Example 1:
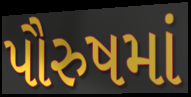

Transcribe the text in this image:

પૌરુષમાં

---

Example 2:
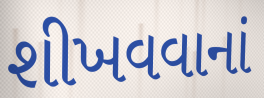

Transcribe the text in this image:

શીખવવાનાં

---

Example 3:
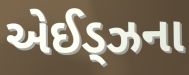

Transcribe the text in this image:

એઈડ્ઝના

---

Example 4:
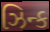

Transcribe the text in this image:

ઝિન્ક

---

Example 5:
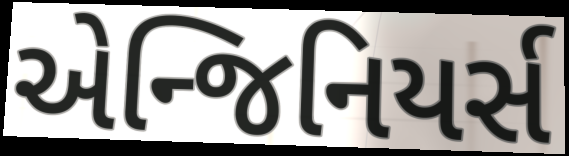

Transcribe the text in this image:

એન્જિનિયર્સ